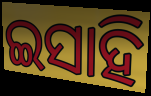
ଇସାହି